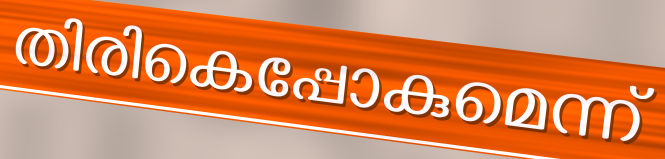
തിരികെപ്പോകുമെന്ന്